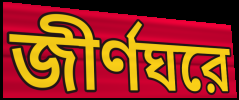
জীর্ণঘরে